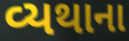
વ્યથાના